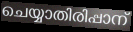
ചെയ്യാതിരിപ്പാന്